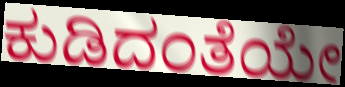
ಕುಡಿದಂತೆಯೇ